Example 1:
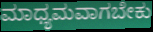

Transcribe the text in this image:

ಮಾಧ್ಯಮವಾಗಬೇಕು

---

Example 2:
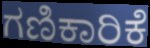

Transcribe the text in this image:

ಗಣಿಕಾರಿಕೆ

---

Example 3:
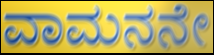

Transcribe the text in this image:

ವಾಮನನೇ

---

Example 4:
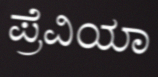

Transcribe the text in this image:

ಪ್ರೆವಿಯಾ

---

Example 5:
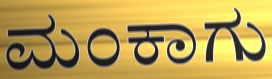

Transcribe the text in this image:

ಮಂಕಾಗು